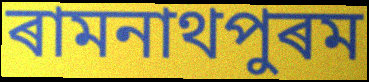
ৰামনাথপুৰম